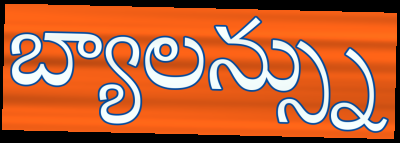
బ్యాలన్స్ను